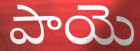
పాయె